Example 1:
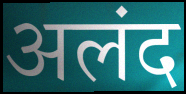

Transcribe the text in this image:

अलंद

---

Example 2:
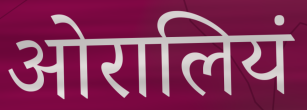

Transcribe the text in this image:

ओरालियं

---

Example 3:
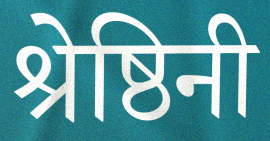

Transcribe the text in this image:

श्रेष्ठिनी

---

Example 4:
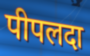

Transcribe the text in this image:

पीपलदा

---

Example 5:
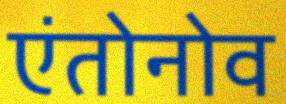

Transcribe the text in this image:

एंतोनोव